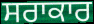
ਸਰਾਕਾਰ